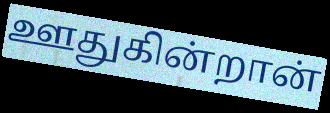
ஊதுகின்றான்